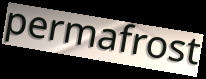
permafrost